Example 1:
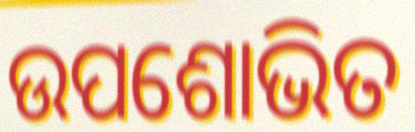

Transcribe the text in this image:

ଉପଶୋଭିତ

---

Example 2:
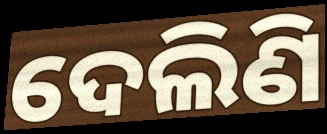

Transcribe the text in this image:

ଦେଲିଣି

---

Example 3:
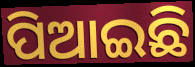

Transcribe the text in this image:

ପିଆଇଛି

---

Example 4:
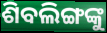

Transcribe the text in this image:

ଶିବଲିଙ୍ଗଙ୍କୁ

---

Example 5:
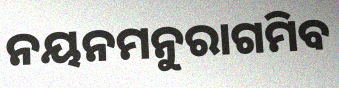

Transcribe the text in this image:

ନୟନମନୁରାଗମିବ